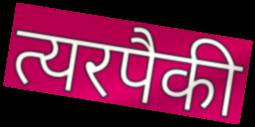
त्यरपैकी